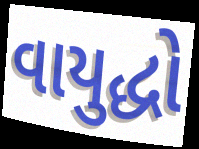
વાયુદ્ધો